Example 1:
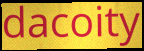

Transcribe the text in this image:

dacoity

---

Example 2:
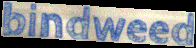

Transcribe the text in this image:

bindweed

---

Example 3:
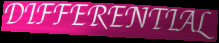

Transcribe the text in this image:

DIFFERENTIAL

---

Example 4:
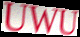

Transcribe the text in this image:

UWU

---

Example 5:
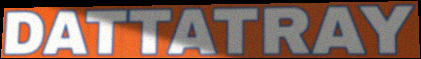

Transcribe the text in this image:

DATTATRAY